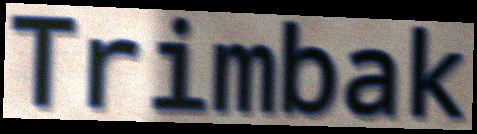
Trimbak